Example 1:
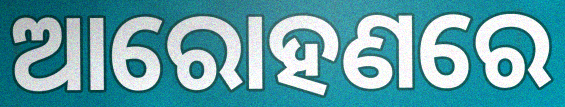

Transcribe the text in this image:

ଆରୋହଣରେ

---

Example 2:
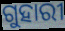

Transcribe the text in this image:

ଗୁହାରୀ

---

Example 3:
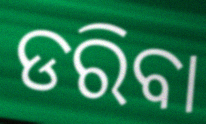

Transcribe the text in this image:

ଡରିବା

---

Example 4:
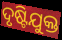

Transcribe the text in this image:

ଦୃଷ୍ଟିଯୁକ୍ତ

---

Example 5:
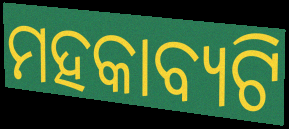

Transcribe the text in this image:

ମହକାବ୍ୟଟି